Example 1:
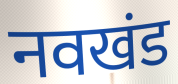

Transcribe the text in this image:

नवखंड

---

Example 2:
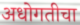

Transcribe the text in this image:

अधोगतीचा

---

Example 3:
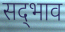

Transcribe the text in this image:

सद्‍भाव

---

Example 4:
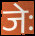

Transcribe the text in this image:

जेः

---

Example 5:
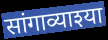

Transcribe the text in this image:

सांगाव्याश्या